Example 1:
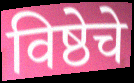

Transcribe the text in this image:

विष्ठेचे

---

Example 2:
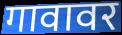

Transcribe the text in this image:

गावावर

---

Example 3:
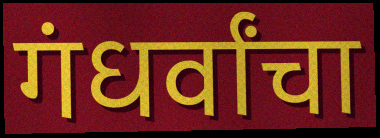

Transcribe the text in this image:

गंधर्वांचा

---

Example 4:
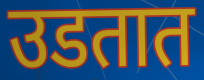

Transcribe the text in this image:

उडतात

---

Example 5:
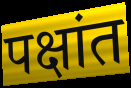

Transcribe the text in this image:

पक्षांत